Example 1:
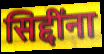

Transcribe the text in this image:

सिद्दींना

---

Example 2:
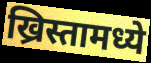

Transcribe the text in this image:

ख्रिस्तामध्ये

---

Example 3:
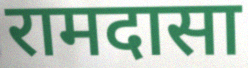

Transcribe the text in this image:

रामदासा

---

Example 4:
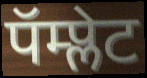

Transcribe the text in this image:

पॅम्प्लेट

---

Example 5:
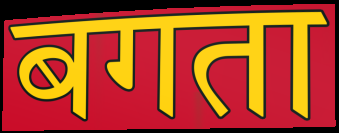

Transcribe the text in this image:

बगता